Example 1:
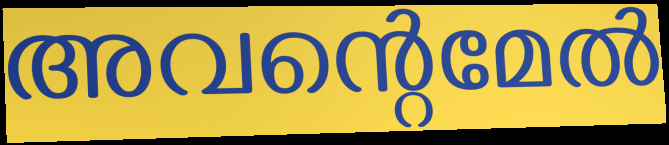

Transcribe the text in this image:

അവന്റെമേൽ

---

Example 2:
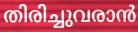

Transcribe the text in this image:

തിരിച്ചുവരാൻ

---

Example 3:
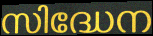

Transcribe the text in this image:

സിദ്ധേന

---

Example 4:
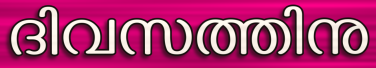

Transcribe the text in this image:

ദിവസത്തിനു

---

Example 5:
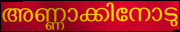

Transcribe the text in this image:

അണ്ണാക്കിനോടു